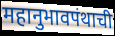
महानुभावपंथाची